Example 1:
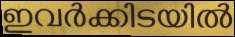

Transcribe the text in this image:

ഇവർക്കിടയിൽ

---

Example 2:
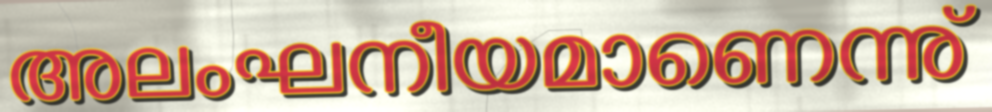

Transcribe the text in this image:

അലംഘനീയമാണെന്നു്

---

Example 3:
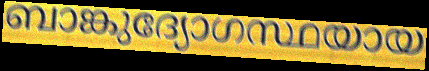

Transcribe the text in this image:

ബാങ്കുദ്യോഗസ്ഥയായ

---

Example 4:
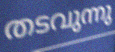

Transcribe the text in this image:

തടവുന്നു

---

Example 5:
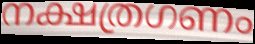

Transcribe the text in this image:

നക്ഷത്രഗണം